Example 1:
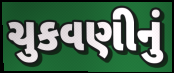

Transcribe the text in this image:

ચુકવણીનું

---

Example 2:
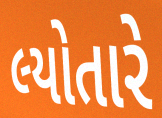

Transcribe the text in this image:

લ્યોતારે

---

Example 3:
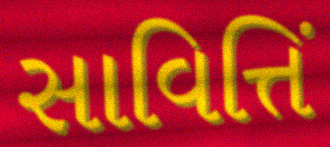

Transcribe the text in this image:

સાવિત્તિં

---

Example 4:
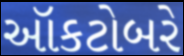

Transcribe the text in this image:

ઑકટોબરે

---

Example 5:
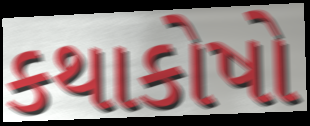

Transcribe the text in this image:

કથાકોષો